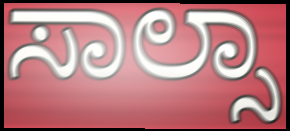
ಸಾಲ್ಸಾ